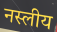
नस्लीय